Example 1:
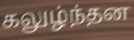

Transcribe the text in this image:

கலுழ்ந்தன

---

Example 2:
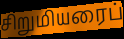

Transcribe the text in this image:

சிறுமியரைப்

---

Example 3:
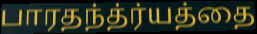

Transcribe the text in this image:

பாரதந்த்ர்யத்தை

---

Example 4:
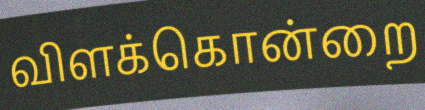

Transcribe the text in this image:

விளக்கொன்றை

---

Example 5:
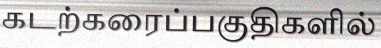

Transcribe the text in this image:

கடற்கரைப்பகுதிகளில்